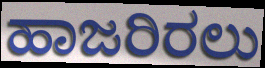
ಹಾಜರಿರಲು